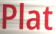
Plat